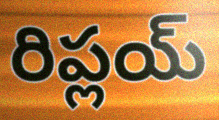
రిప్లయ్